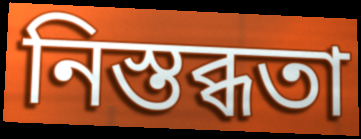
নিস্তব্ধতা